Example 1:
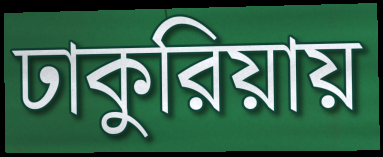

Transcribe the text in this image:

ঢাকুরিয়ায়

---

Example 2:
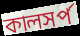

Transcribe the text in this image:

কালসর্প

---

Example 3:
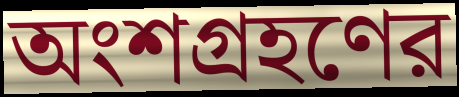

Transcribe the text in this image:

অংশগ্রহণের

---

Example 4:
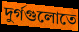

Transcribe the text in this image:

দুর্গগুলোতে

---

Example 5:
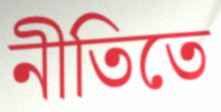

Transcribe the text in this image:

নীতিতে